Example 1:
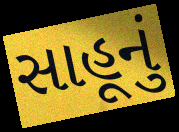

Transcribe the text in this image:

સાહૂનું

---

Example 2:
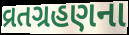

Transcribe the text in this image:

વ્રતગ્રહણના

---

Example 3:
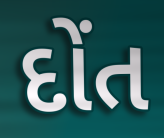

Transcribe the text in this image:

દોંત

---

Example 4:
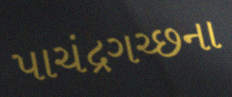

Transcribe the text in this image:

પાચંદ્રગચ્છના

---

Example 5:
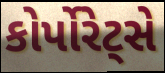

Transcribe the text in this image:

કોર્પોરેટ્સે